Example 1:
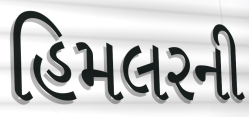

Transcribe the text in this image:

હિમલરની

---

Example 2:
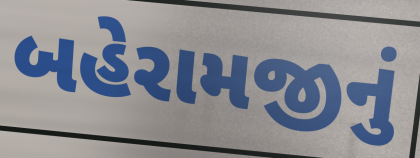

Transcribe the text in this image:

બહેરામજીનું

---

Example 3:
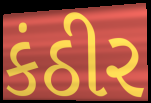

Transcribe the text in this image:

કંઠીર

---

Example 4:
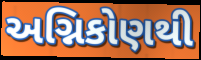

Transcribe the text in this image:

અગ્નિકોણથી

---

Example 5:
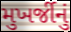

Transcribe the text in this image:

મુખર્જીનું